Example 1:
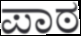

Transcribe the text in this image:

ಪಾಠ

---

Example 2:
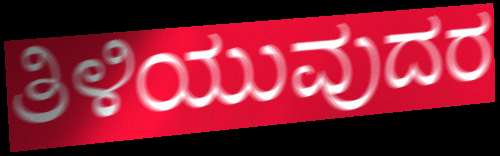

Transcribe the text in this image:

ತಿಳಿಯುವುದರ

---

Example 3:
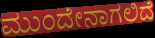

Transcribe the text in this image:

ಮುಂದೇನಾಗಲಿದೆ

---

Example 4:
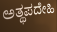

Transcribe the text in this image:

ಅತ್ಥಪದೇಹಿ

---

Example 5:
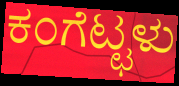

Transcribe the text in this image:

ಕಂಗೆಟ್ಟಳು